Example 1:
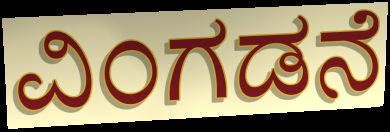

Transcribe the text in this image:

ವಿಂಗಡನೆ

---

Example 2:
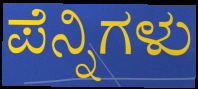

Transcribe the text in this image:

ಪೆನ್ನಿಗಳು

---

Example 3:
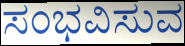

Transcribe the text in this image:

ಸಂಭವಿಸುವ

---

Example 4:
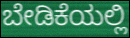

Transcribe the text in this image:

ಬೇಡಿಕೆಯಲ್ಲಿ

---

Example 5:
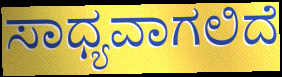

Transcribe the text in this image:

ಸಾಧ್ಯವಾಗಲಿದೆ